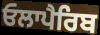
ਓਲਾਪੈਰਿਬ